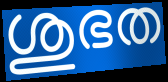
ശുഭത